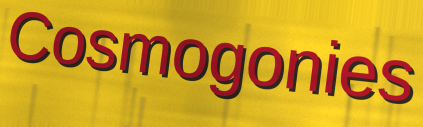
Cosmogonies